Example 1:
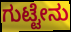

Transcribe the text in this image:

ಗುಟ್ಟೇನು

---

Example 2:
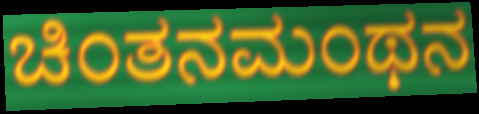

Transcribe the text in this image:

ಚಿಂತನಮಂಥನ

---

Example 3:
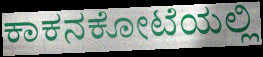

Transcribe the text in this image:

ಕಾಕನಕೋಟೆಯಲ್ಲಿ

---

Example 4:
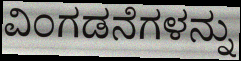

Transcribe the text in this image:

ವಿಂಗಡನೆಗಳನ್ನು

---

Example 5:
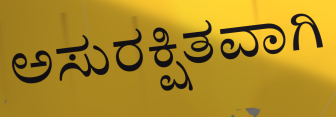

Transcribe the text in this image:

ಅಸುರಕ್ಷಿತವಾಗಿ